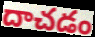
దాచడం